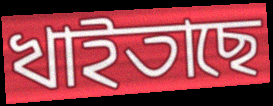
খাইতাছে